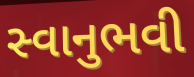
સ્વાનુભવી